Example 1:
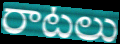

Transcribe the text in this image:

రాటలు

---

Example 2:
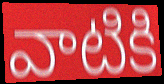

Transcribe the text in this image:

వాటికి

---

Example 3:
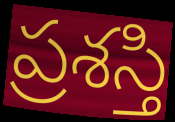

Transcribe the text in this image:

ప్రశస్తి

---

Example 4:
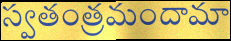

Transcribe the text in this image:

స్వతంత్రమందామా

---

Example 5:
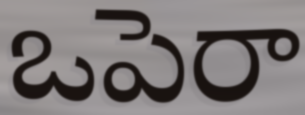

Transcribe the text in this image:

ఒపెరా